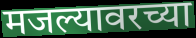
मजल्यावरच्या